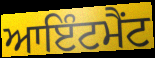
ਆਇੰਟਮੈਂਟ